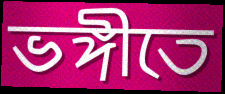
ভঙ্গীতে